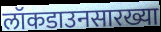
लॉकडाउनसारख्या